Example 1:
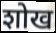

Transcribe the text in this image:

शोख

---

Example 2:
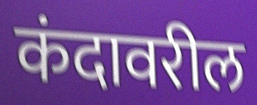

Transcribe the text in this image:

कंदावरील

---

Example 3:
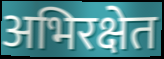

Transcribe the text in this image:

अभिरक्षेत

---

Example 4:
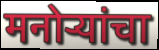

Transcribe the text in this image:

मनोर्‍यांचा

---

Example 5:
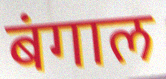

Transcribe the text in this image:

बंगाल